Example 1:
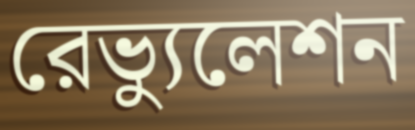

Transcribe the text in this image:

রেভ্যুলেশন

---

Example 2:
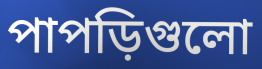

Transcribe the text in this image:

পাপড়িগুলো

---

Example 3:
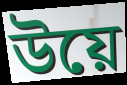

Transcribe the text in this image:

উয়ে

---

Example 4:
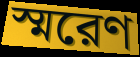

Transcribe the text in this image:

স্মরেণ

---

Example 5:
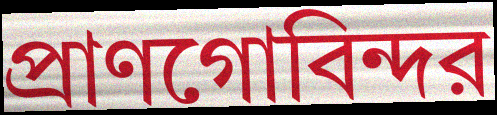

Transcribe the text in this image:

প্রাণগোবিন্দর